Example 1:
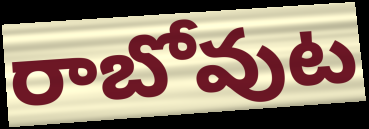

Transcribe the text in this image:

రాబోవుట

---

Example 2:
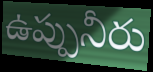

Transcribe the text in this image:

ఉప్పునీరు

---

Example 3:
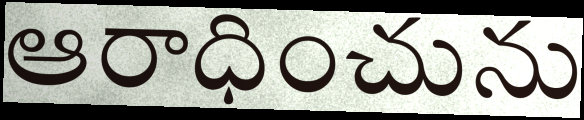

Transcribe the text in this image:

ఆరాధించును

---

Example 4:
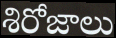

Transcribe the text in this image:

శిరోజాలు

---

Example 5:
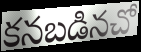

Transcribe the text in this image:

కనబడినచో